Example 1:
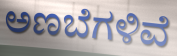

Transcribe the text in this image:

ಅಣಬೆಗಳಿವೆ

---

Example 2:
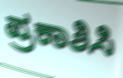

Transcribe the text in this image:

ಪ್ರಕಾಶಿಸಿ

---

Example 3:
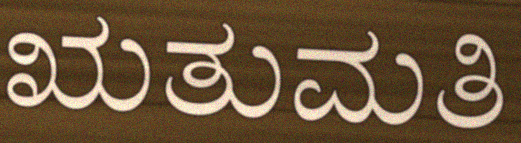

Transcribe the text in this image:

ಋತುಮತಿ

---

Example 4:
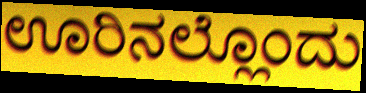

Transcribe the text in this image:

ಊರಿನಲ್ಲೊಂದು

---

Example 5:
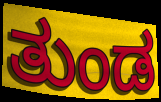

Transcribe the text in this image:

ತುಂಡ